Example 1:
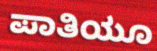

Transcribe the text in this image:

ಪಾತಿಯೂ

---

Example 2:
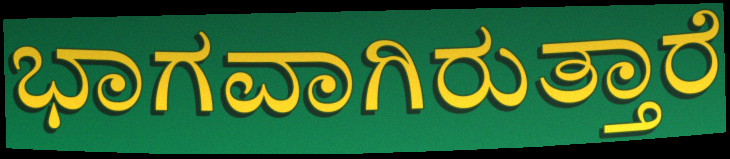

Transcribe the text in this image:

ಭಾಗವಾಗಿರುತ್ತಾರೆ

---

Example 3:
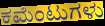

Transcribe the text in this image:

ಕಮೆಂಟುಗಳು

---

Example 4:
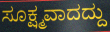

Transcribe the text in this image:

ಸೂಕ್ಷ್ಮವಾದದ್ದು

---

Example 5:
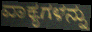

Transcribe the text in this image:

ವಾಕ್ಯಗಳನ್ನು